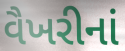
વૈખરીનાં